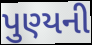
પુણ્યની